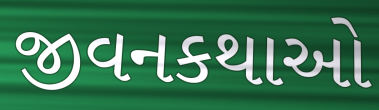
જીવનકથાઓ